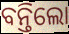
ବନ୍ତିଲୋ